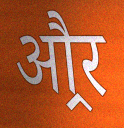
औ्रर